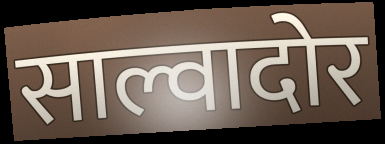
साल्वादोर